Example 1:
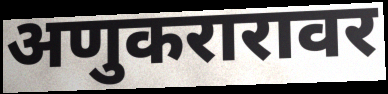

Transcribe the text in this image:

अणुकरारावर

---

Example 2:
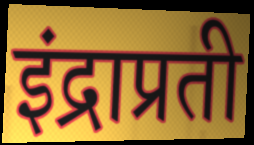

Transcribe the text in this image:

इंद्राप्रती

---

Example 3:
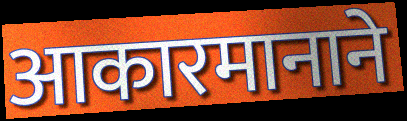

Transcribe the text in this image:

आकारमानाने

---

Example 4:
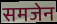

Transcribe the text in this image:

समजेन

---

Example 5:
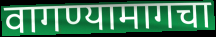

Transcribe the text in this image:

वागण्यामागचा